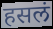
हसलं